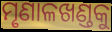
ମୃଣାଳଖଣ୍ଡକୁ